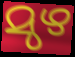
മുഴ